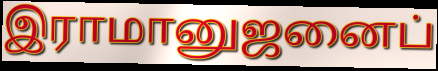
இராமானுஜனைப்